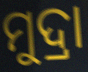
ମୁଦ୍ରା